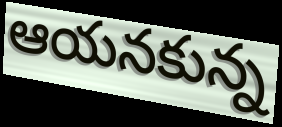
ఆయనకున్న